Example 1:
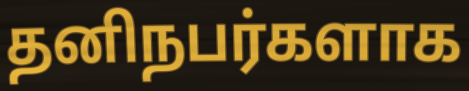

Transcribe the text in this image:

தனிநபர்களாக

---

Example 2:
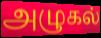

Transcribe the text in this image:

அழுகல்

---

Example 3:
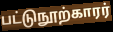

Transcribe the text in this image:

பட்டுநூற்காரர்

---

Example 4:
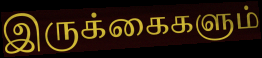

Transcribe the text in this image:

இருக்கைகளும்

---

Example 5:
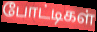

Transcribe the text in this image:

போட்டிகள்